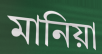
মানিয়া